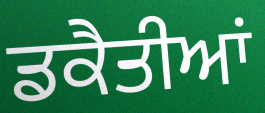
ਡਕੈਤੀਆਂ